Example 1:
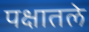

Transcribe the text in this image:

पक्षातले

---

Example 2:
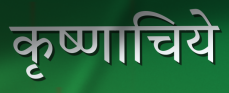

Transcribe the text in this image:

कृष्णाचिये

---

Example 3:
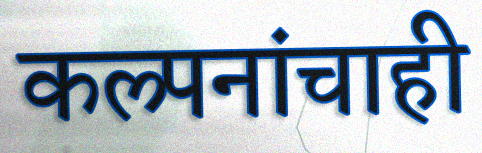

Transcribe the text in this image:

कल्पनांचाही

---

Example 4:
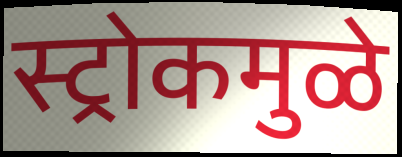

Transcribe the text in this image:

स्ट्रोकमुळे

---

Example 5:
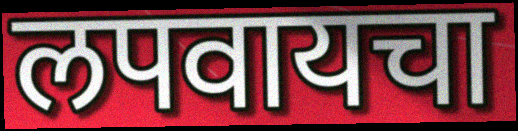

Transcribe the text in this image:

लपवायचा